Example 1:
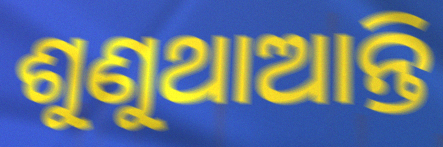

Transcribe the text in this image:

ଶୁଣୁଥାଆନ୍ତି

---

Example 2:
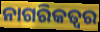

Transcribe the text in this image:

ନାଗରିକତ୍ୱର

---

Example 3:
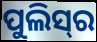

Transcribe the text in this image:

ପୁଲିସ୍‌ର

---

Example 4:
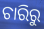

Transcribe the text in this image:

ଚାରିରୁ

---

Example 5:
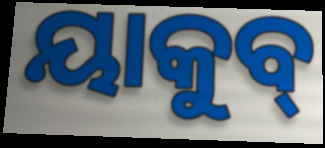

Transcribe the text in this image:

ୟାକୁବ୍